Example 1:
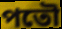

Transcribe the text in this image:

পতৌ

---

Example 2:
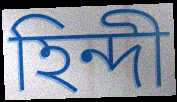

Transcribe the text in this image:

হিন্দী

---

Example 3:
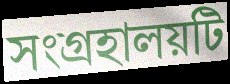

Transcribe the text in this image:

সংগ্রহালয়টি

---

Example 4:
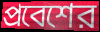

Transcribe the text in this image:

প্রবেশের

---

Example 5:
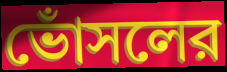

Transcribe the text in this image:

ভোঁসলের